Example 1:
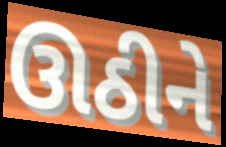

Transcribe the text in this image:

ઊઠીને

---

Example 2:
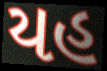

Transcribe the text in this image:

યહ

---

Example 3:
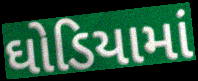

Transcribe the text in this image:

ઘોડિયામાં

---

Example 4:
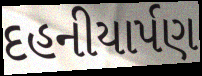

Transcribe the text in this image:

દહનીયાર્પણ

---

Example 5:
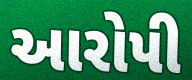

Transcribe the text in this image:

આરોપી